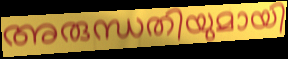
അരുന്ധതിയുമായി